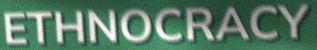
ETHNOCRACY